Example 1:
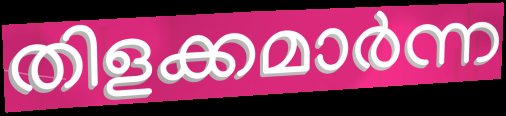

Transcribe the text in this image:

തിളക്കമാർന്ന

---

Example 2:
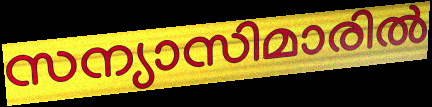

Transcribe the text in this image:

സന്യാസിമാരിൽ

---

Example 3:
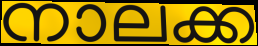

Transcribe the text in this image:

നാലക്ക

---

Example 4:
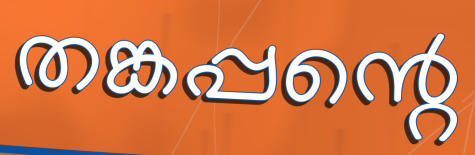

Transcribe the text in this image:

തങ്കപ്പന്റെ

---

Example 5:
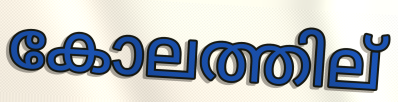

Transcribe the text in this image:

കോലത്തില്